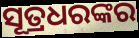
ସୂତ୍ରଧରଙ୍କର